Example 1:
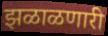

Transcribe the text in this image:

झळाळणारी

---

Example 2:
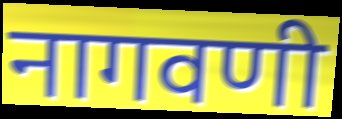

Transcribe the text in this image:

नागवणी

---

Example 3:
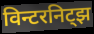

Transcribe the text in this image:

विन्टरनिट्झ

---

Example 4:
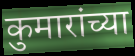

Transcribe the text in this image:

कुमारांच्या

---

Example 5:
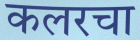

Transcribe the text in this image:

कलरचा